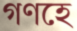
গণহে